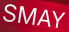
SMAY